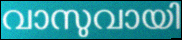
വാസുവായി